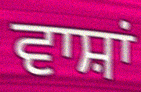
ਵਾਸ਼ਾਂ